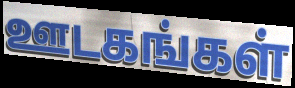
ஊடகங்கள்